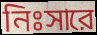
নিঃসারে